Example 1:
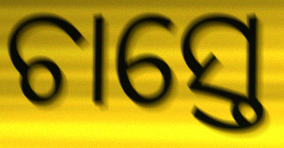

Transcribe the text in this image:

ଚାସ୍ତେ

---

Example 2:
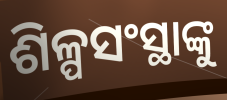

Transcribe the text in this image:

ଶିଳ୍ପସଂସ୍ଥାଙ୍କୁ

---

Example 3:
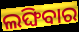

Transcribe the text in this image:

ଲଙ୍ଘିବାର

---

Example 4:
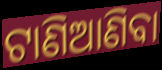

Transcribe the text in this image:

ଟାଣିଆଣିବା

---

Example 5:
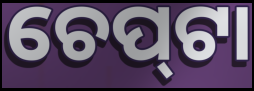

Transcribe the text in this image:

ଚେପ୍‌ଟା